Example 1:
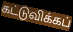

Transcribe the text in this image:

கட்டுவிக்கப்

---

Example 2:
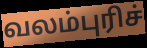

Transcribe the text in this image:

வலம்புரிச்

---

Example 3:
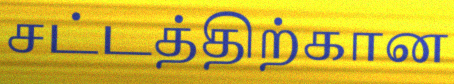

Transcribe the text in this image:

சட்டத்திற்கான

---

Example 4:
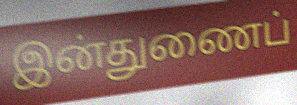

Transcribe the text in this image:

இன்துணைப்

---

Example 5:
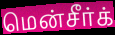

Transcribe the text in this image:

மென்சீர்க்